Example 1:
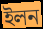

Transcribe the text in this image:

ইলন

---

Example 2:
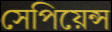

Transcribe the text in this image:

সেপিয়েন্স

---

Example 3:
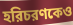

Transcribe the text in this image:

হরিচরণকেও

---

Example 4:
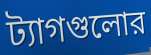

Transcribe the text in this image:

ট্যাগগুলোর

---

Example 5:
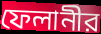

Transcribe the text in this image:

ফেলানীর